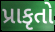
પ્રાકૃતો